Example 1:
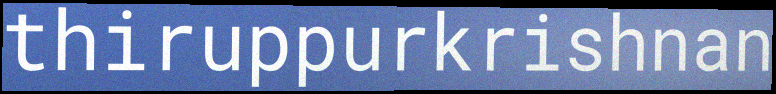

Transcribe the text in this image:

thiruppurkrishnan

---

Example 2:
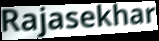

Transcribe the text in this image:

Rajasekhar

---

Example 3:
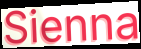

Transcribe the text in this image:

Sienna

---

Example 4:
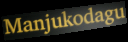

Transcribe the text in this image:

Manjukodagu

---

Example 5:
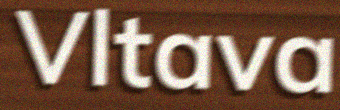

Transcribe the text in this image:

Vltava